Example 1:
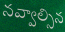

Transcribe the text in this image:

నవ్వాల్సిన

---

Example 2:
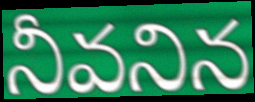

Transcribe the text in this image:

నీవనిన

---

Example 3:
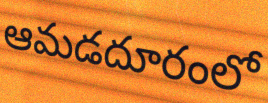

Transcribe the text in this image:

ఆమడదూరంలో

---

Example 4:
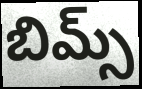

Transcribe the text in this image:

బిమ్స్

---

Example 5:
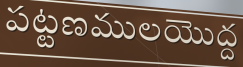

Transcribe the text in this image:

పట్టణములయొద్ద